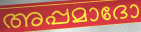
അപ്പമാദോ